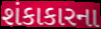
શંકાકારના